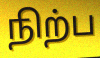
நிற்ப